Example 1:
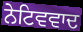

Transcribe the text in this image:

ਨੇਟਿਵਵਾਦ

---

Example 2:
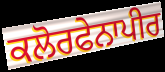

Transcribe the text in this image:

ਕਲੋਰਫੇਨਾਪੀਰ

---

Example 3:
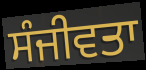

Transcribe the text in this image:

ਸੰਜੀਵਤਾ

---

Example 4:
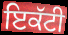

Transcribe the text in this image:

ਇਕੱਟੀ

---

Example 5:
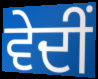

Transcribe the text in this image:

ਵੇਦੀਂ